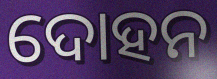
ଦୋହନ